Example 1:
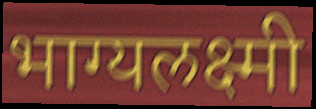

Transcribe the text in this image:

भाग्यलक्ष्मी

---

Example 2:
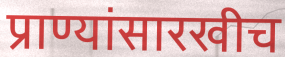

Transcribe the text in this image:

प्राण्यांसारखीच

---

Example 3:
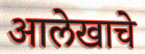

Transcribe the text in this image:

आलेखाचे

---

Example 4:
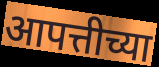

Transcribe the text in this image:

आपत्तीच्या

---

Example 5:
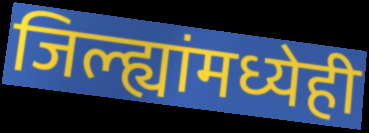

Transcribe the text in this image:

जिल्ह्यांमध्येही